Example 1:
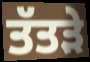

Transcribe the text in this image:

ਤੱਤੜੇ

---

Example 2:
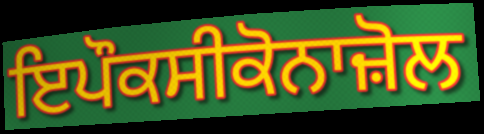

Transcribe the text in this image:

ਇਪੌਕਸੀਕੋਨਾਜ਼ੋਲ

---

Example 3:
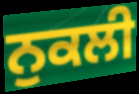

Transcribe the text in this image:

ਨੁਕਲੀ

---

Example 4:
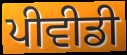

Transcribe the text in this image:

ਪੀਵੀਡੀ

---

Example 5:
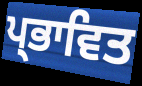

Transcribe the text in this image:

ਪ੍ਭਾਵਿਤ